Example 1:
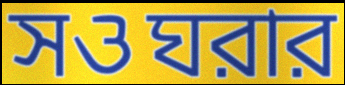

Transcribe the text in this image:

সওঘরার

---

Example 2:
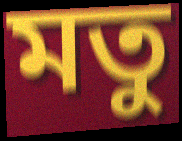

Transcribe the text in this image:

মতু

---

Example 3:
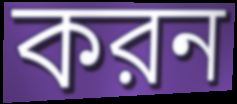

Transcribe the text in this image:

করন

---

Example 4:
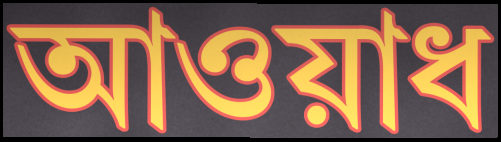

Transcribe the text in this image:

আওয়াধ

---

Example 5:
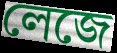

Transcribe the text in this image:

লেজে